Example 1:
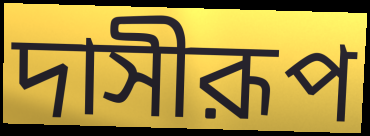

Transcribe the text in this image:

দাসীরূপ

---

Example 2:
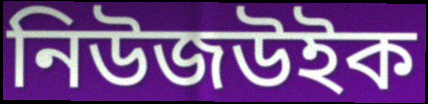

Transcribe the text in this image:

নিউজউইক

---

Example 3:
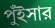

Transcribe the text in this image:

পুঁইসার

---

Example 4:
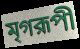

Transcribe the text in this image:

মৃগরূপী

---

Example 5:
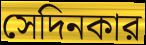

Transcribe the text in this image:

সেদিনকার